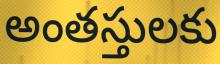
అంతస్తులకు